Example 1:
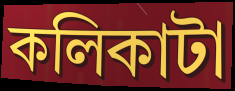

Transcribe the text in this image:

কলিকাটা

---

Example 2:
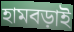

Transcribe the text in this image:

হামবড়াই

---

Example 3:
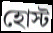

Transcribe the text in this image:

হোস্ট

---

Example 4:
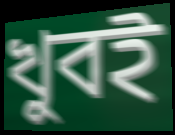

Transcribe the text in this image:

খুবই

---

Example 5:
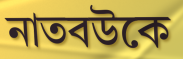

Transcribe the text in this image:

নাতবউকে